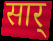
सार्